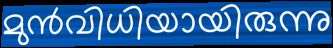
മുൻവിധിയായിരുന്നു